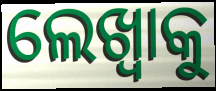
ଲେଖ୍ବାକୁ